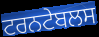
ਟਰਨਟੇਬਲਸ